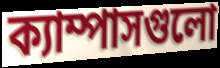
ক্যাম্পাসগুলো